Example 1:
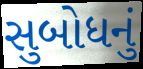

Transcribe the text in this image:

સુબોધનું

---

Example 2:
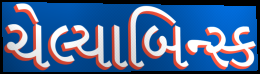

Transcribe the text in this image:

ચેલ્યાબિન્સ્ક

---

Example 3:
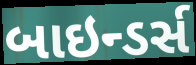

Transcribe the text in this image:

બાઇન્ડર્સ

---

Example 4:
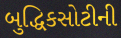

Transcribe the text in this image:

બુદ્ધિકસોટીની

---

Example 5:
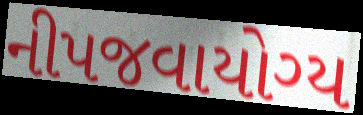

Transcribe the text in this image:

નીપજવાયોગ્ય